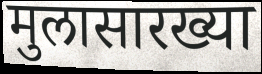
मुलासारख्या